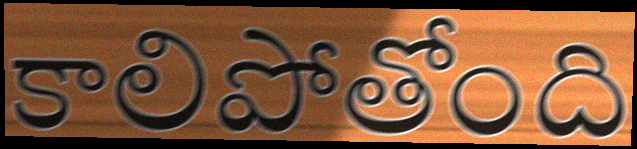
కాలిపోతోంది